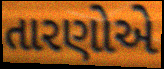
તારણોએ